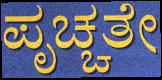
ಪೃಚ್ಚತೇ